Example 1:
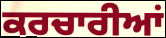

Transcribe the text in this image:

ਕਰਚਾਰੀਆਂ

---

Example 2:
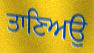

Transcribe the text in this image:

ਤਾਣਿਅਉ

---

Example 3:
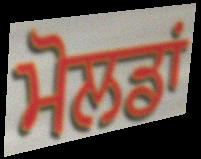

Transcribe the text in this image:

ਮੋਲਡਾਂ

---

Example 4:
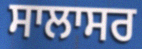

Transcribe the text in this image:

ਸਾਲਾਸਰ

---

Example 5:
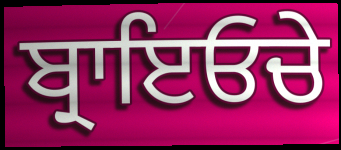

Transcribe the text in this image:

ਬ੍ਰਾਇਓਚੇ